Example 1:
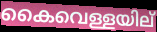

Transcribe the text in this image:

കൈവെള്ളയില്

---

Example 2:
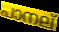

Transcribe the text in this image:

പാനല്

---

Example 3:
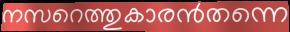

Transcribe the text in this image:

നസറെത്തുകാരൻതന്നെ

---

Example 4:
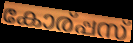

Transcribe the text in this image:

കോര്പ്പസ്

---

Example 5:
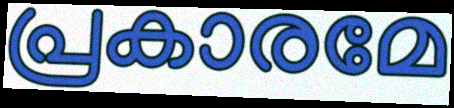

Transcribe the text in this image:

പ്രകാരമേ